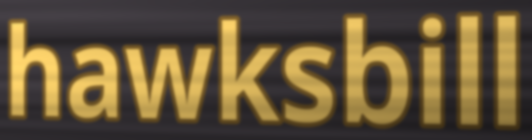
hawksbill